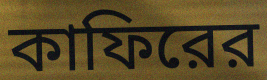
কাফিরের